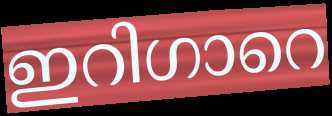
ഇറിഗാറെ